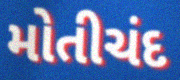
મોતીચંદ